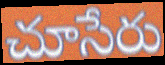
చూసేరు